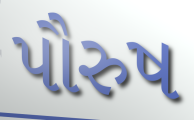
પૌરુષ